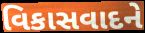
વિકાસવાદને